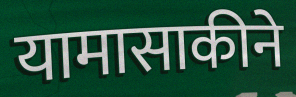
यामासाकीने